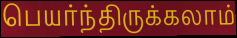
பெயர்ந்திருக்கலாம்